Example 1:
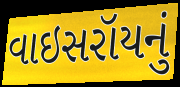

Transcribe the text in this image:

વાઇસરૉયનું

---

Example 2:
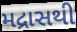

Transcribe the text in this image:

મદ્રાસથી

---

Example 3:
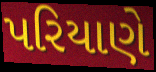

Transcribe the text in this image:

પરિયાણે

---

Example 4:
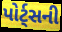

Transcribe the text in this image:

પોર્ટ્સની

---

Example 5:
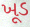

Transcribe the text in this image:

ખૂડ